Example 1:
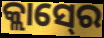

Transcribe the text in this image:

କ୍ଲାସ୍‍ରେ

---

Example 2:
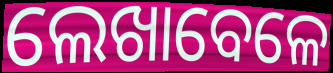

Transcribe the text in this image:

ଲେଖାବେଳେ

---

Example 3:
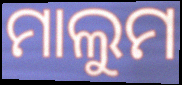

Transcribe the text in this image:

ମାଲୁମ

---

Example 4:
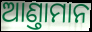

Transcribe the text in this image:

ଆଣ୍ତାମାନ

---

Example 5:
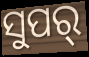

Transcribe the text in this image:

ସୁପର୍